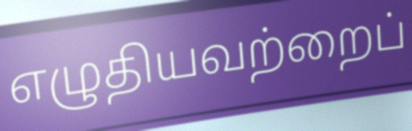
எழுதியவற்றைப்